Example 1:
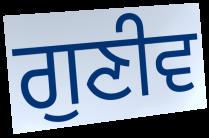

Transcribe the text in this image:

ਗੁਣੀਵ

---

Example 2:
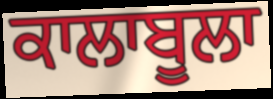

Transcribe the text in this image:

ਕਾਲਾਬੂਲਾ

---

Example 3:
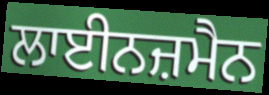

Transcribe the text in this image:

ਲਾਈਨਜ਼ਮੈਨ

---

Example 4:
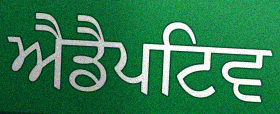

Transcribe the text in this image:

ਐਡੈਪਟਿਵ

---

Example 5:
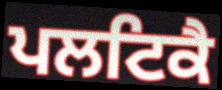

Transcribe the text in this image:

ਪਲਟਿਕੈ